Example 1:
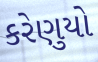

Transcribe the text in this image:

કરેણુયો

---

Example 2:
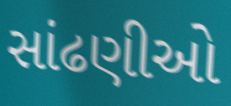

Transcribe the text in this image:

સાંઢણીઓ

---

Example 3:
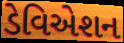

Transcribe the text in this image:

ડેવિએશન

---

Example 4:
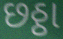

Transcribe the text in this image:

છઠ્ઠા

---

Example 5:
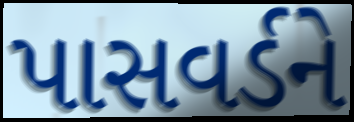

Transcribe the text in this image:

પાસવર્ડને